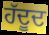
ਹੱਦੂਦ